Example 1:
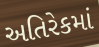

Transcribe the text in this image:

અતિરેકમાં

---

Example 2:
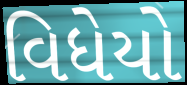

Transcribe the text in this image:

વિધેયો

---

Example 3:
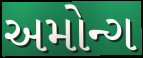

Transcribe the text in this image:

અમોન્ગ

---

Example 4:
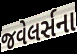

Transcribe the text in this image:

જવેલર્સના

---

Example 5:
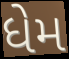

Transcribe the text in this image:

ધેમ